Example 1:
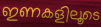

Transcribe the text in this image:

ഇണകളിലൂടെ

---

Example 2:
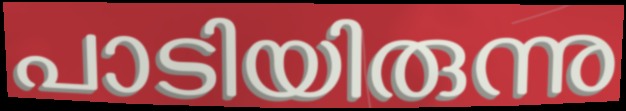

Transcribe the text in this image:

പാടിയിരുന്നു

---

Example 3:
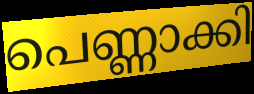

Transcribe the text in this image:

പെണ്ണാക്കി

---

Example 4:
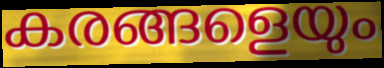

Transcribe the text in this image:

കരങ്ങളെയും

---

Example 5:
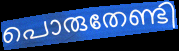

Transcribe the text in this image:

പൊരുതേണ്ടി